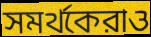
সমর্থকেরাও